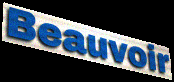
Beauvoir